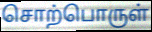
சொற்பொருள்